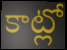
కాట్లో